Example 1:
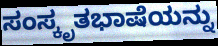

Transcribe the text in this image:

ಸಂಸ್ಕೃತಭಾಷೆಯನ್ನು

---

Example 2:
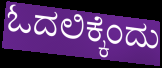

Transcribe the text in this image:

ಓದಲಿಕ್ಕೆಂದು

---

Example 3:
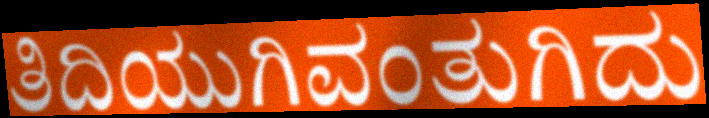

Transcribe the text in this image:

ತಿದಿಯುಗಿವಂತುಗಿದು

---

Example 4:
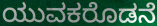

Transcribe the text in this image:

ಯುವಕರೊಡನೆ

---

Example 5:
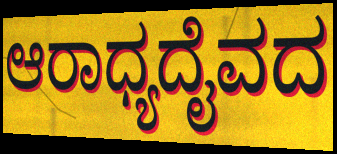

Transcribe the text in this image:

ಆರಾಧ್ಯದೈವದ